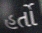
હર્તો